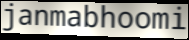
janmabhoomi